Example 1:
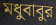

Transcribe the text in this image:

মধুবাবুর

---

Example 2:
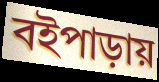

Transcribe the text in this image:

বইপাড়ায়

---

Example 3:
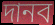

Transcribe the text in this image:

দানব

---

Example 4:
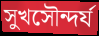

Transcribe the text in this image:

সুখসৌন্দর্য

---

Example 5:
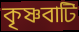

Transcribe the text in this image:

কৃষ্ণবাটি